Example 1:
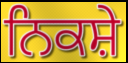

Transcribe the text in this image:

ਨਿਕਸ਼ੇ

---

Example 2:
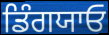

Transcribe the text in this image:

ਡਿੰਗਯਾਓ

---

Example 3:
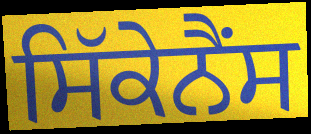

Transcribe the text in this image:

ਸਿੱਕੇਨੈਂਸ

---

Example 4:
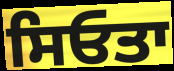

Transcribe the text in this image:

ਸਿਓਤਾ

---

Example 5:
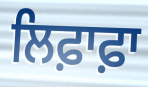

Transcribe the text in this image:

ਲਿਫ਼ਾਫ਼ਾ